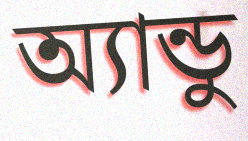
অ্যান্ডু